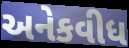
અનેકવીધ